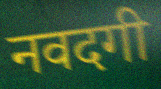
नवदगी